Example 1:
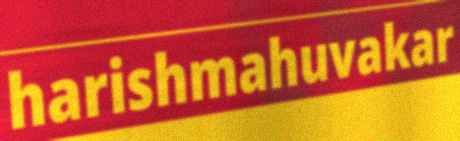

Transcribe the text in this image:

harishmahuvakar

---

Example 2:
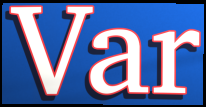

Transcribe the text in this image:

Var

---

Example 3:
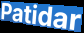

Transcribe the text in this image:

Patidar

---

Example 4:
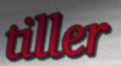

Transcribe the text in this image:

tiller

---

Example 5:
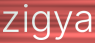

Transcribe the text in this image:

zigya